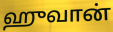
ஹுவான்